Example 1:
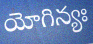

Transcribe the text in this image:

యోగిన్యః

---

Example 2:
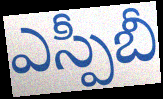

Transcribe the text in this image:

ఎస్పీబీ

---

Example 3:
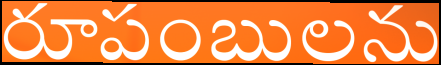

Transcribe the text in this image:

రూపంబులను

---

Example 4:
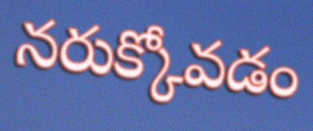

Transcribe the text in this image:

నరుక్కోవడం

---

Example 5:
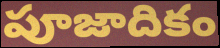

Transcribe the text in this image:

పూజాదికం